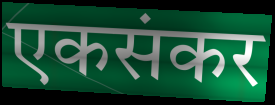
एकसंकर